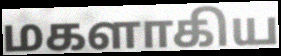
மகளாகிய